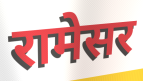
रामेसर